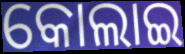
କୋଲାଇ